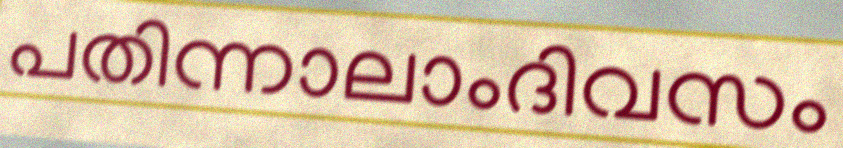
പതിന്നാലാംദിവസം